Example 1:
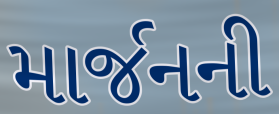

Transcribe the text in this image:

માર્જનની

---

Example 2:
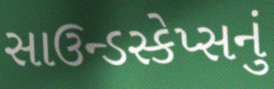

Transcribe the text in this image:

સાઉન્ડસ્કેપ્સનું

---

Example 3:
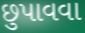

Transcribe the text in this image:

છુપાવવા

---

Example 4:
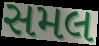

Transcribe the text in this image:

સમલ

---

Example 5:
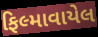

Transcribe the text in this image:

ફિલ્માવાયેલ